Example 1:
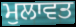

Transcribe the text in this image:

ਮੁਲਾਵਤ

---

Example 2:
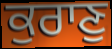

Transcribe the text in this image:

ਕੁਰਾਣੁ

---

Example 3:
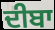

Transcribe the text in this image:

ਦੀਬਾ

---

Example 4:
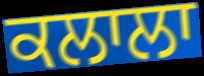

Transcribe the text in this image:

ਕਲਾਲਾ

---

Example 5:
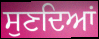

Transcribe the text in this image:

ਸੁਣਦਿਆਂ